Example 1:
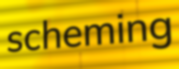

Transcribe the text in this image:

scheming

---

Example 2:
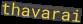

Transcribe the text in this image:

thavarai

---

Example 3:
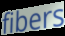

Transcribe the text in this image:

fibers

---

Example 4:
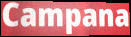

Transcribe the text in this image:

Campana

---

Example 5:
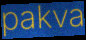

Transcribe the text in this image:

pakva